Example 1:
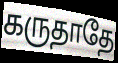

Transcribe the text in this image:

கருதாதே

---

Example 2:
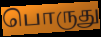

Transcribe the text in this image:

பொருது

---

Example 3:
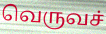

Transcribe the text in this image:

வெருவச்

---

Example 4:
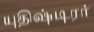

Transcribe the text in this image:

யுதிஷ்டிரர்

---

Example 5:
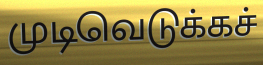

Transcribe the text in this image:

முடிவெடுக்கச்